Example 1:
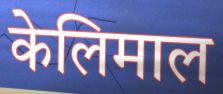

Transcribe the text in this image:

केलिमाल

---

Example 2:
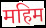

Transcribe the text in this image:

महिम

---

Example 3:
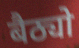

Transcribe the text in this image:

बैठ्यो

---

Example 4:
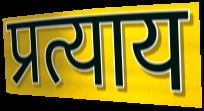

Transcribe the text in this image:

प्रत्याय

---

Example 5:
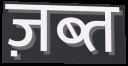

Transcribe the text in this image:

ज़ब्त